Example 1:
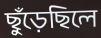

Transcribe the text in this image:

ছুঁড়েছিলে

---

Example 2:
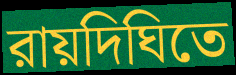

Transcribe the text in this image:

রায়দিঘিতে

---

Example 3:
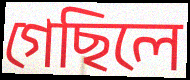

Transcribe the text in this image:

গেছিলে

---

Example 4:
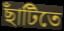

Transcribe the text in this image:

ছাঁটিতে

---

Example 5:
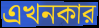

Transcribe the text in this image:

এখনকার